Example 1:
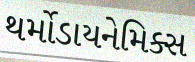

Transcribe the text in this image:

થર્મોડાયનેમિક્સ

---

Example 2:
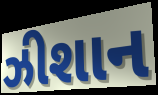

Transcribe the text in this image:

ઝીશાન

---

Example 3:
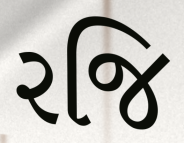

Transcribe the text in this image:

રજિ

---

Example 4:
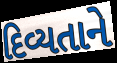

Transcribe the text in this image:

દિવ્યતાને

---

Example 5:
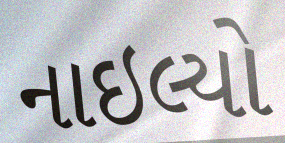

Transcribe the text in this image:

નાઇલ્યો